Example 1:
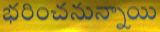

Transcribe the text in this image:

భరించనున్నాయి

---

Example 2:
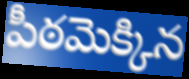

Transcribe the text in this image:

పీఠమెక్కిన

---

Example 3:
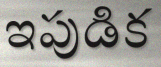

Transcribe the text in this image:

ఇపుడిక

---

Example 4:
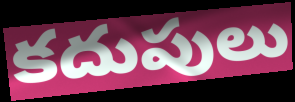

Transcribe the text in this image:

కదుపులు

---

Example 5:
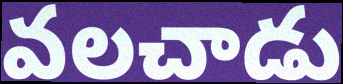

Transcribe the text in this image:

వలచాడు